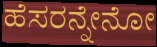
ಹೆಸರನ್ನೇನೋ